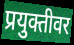
प्रयुक्तीवर